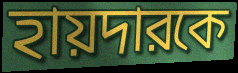
হায়দারকে